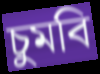
চুমবি